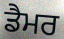
ਡੈਮਰ